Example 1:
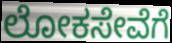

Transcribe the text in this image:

ಲೋಕಸೇವೆಗೆ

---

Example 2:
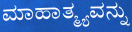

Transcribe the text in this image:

ಮಾಹಾತ್ಮ್ಯವನ್ನು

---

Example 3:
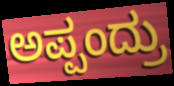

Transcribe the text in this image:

ಅಪ್ಪಂದ್ರು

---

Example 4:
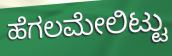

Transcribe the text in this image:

ಹೆಗಲಮೇಲಿಟ್ಟು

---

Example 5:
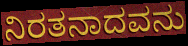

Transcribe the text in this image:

ನಿರತನಾದವನು